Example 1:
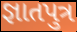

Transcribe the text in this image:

જ્ઞાતપુત્ર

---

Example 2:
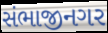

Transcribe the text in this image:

સંભાજીનગર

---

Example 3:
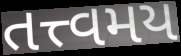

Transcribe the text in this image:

તત્ત્વમય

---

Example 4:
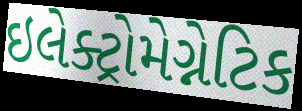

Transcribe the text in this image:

ઇલેક્ટ્રોમેગ્નેટિક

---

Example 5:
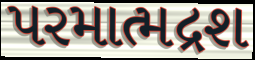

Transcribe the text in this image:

પરમાત્મદ્રશ